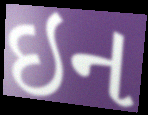
ઇન